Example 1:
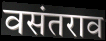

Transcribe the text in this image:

वसंतराव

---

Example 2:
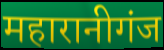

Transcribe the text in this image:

महारानीगंज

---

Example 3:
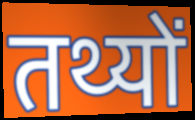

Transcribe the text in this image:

तथ्यों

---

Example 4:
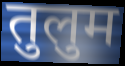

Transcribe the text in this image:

तुलुम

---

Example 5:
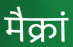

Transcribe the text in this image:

मैक्रां